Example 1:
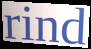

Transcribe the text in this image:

rind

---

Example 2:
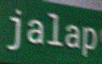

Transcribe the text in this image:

jalap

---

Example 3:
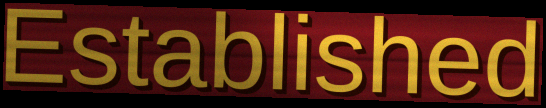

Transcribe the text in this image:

Established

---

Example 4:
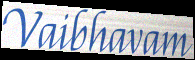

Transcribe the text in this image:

Vaibhavam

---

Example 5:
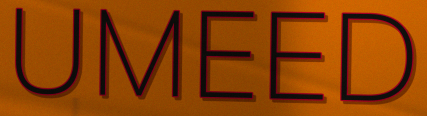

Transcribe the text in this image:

UMEED